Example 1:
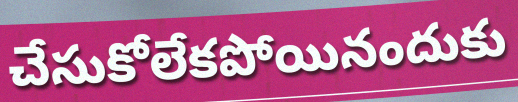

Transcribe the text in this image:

చేసుకోలేకపోయినందుకు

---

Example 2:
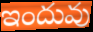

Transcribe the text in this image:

ఇందువు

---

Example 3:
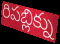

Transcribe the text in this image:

రిపబ్లిక్ను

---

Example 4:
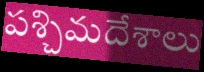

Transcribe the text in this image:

పశ్చిమదేశాలు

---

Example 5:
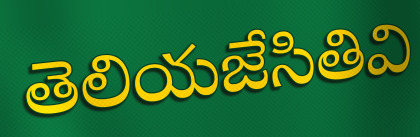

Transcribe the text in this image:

తెలియజేసితివి